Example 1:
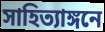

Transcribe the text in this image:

সাহিত্যাঙ্গনে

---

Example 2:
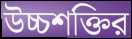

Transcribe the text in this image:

উচ্চশক্তির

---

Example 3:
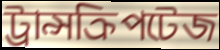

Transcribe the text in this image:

ট্রান্সক্রিপটেজ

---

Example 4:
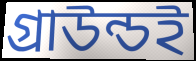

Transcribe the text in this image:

গ্রাউন্ডই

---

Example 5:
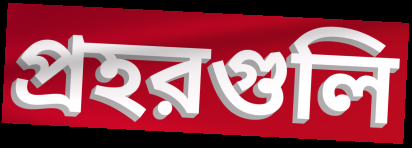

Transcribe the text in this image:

প্রহরগুলি